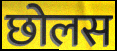
छोलस